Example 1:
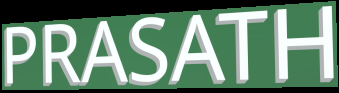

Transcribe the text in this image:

PRASATH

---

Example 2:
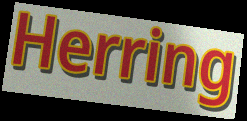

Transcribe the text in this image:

Herring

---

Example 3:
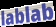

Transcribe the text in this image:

lablab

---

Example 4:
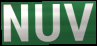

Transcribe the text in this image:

NUV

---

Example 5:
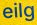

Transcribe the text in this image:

eilg